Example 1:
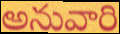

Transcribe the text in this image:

అనువారి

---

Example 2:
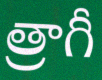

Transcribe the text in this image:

త్రాగీ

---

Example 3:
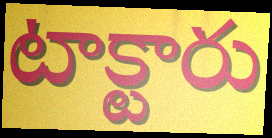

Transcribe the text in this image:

టాక్టారు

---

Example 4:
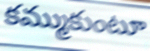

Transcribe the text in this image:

కమ్ముకుంటూ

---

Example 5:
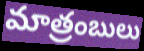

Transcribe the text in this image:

మాత్రంబులు